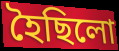
হৈছিলো